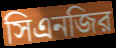
সিএনজির